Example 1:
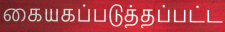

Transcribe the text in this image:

கையகப்படுத்தப்பட்ட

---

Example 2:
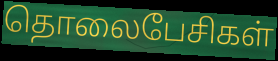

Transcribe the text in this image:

தொலைபேசிகள்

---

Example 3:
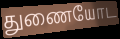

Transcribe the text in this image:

துணையோட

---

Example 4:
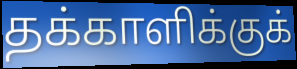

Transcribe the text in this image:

தக்காளிக்குக்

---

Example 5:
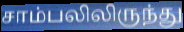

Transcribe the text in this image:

சாம்பலிலிருந்து